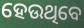
ହେଉଥିବେ